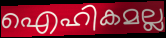
ഐഹികമല്ല